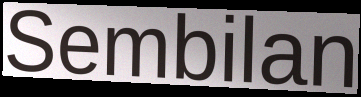
Sembilan